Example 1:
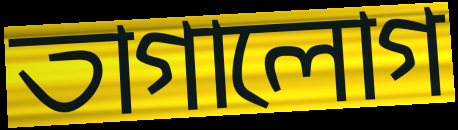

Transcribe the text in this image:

তাগালোগ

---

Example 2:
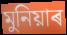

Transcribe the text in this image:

মুনিয়াৰ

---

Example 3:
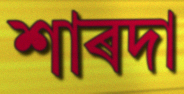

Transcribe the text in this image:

শাৰদা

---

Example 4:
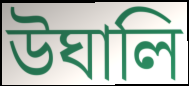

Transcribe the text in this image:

উঘালি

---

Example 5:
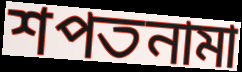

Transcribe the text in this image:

শপতনামা